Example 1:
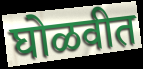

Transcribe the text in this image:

घोळवीत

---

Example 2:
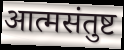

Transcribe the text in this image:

आत्मसंतुष्ट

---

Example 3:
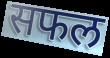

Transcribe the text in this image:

सफल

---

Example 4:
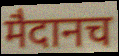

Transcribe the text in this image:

मैदानच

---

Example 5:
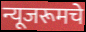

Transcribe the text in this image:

न्यूजरूमचे